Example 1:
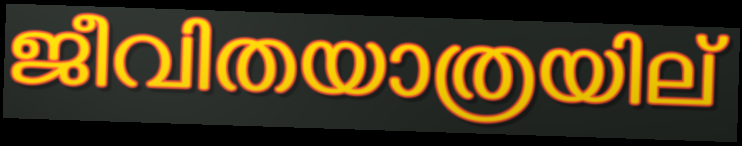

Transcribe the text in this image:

ജീവിതയാത്രയില്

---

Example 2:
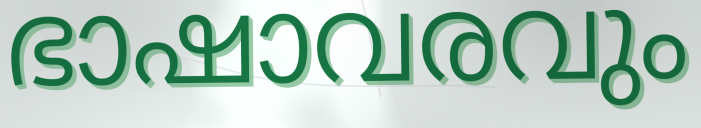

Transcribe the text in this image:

ഭാഷാവരവും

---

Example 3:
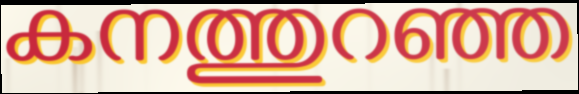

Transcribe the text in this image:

കനത്തുറഞ്ഞ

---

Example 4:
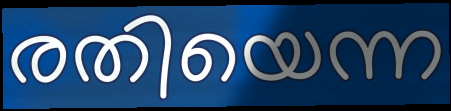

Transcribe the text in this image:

രതിയെന്ന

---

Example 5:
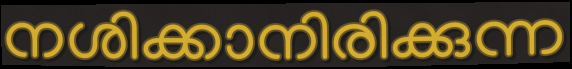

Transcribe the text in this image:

നശിക്കാനിരിക്കുന്ന